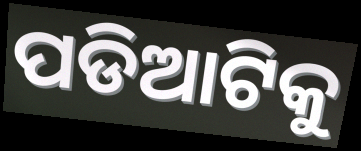
ପଡିଆଟିକୁ